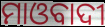
ମାଓବାଦୀ